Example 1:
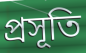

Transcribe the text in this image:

প্ৰসূতি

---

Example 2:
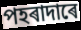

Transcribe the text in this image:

পহৰাদাৰে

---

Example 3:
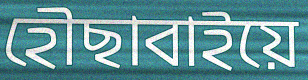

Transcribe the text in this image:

হৌছাবাইয়ে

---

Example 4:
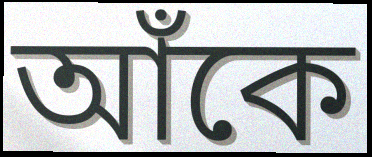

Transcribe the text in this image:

আঁকে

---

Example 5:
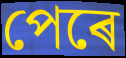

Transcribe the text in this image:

পেৰে